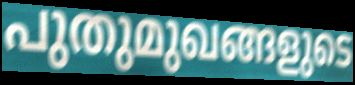
പുതുമുഖങ്ങളുടെ